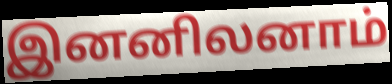
இனனிலனாம்